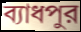
ব্যাধপুর